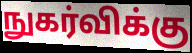
நுகர்விக்கு